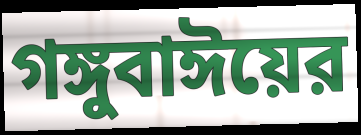
গঙ্গুবাঈয়ের